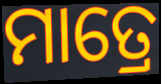
ମାତ୍ରେ